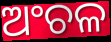
ଅଂଚଳ